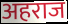
अहराज